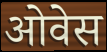
ओवेस